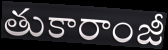
తుకారాంజీ